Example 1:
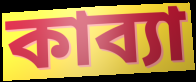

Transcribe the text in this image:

কাব্যা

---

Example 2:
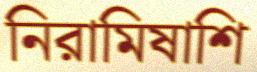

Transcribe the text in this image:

নিরামিষাশি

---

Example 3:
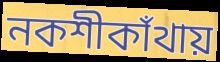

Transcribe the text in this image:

নকশীকাঁথায়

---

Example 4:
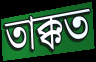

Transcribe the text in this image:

তাক্কত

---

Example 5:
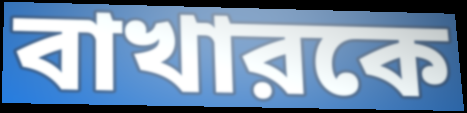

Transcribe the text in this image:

বাখারকে